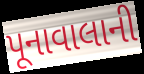
પૂનાવાલાની